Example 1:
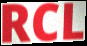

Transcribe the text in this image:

RCL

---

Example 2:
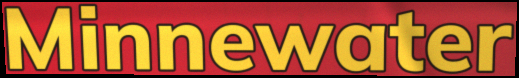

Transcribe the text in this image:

Minnewater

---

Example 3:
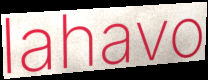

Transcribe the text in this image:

lahavo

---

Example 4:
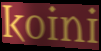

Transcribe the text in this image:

koini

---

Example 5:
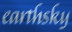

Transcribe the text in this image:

earthsky